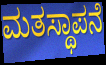
ಮತಸ್ಥಾಪನೆ